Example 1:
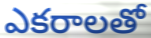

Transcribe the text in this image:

ఎకరాలతో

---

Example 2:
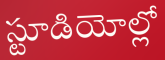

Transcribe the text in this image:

స్టూడియోల్లో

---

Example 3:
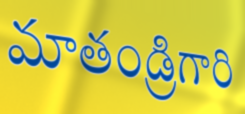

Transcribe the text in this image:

మాతండ్రిగారి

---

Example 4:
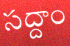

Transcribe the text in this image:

సద్దాం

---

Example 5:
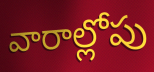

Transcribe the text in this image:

వారాల్లోపు